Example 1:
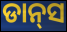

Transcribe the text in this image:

ଡାନ୍‍ସ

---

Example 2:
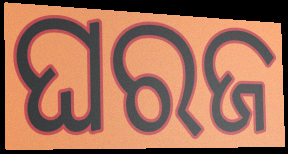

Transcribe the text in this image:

ଘରଜ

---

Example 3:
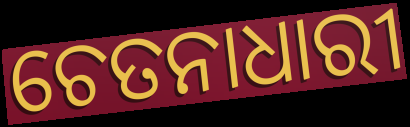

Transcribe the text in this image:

ଚେତନାଧାରୀ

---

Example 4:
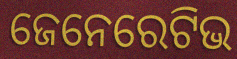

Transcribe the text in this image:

ଜେନେରେଟିଭ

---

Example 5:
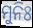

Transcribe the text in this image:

ମୁନିଃ